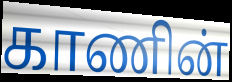
காணின்